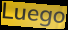
Luego